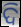
ଦି